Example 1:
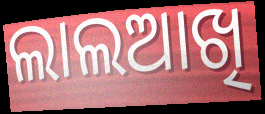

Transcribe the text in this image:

ଲାଲଆଖି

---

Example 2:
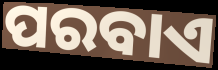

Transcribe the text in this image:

ପରବାଏ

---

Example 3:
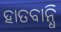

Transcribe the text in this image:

ହାତବାନ୍ଧି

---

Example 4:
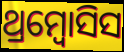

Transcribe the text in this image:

ଥ୍ରମ୍ବୋସିସ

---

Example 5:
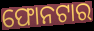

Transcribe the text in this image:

ଫୋନଟାର